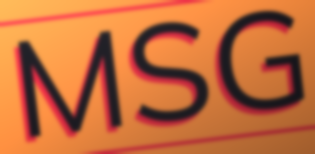
MSG